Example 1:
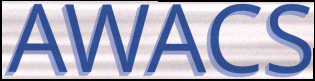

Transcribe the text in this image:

AWACS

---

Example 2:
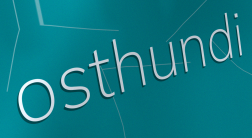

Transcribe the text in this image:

osthundi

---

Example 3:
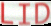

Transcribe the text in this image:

LID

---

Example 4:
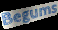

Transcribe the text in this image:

Begums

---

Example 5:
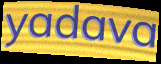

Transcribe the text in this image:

yadava